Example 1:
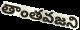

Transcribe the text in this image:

తాంతవజని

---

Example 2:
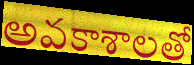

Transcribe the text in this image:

అవకాశాలతో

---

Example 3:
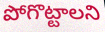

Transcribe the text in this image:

పోగొట్టాలని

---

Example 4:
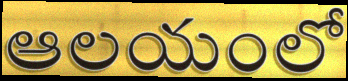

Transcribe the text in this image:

ఆలయంలో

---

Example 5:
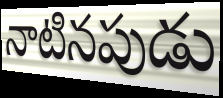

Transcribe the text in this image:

నాటినపుడు